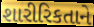
શારીરિકતાને